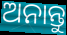
ଅନାନ୍ତୁ